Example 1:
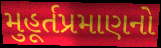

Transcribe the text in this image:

મુહૂર્તપ્રમાણનો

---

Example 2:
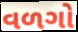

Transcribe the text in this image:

વળગો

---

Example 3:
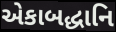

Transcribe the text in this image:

એકાબદ્ધાનિ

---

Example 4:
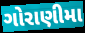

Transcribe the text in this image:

ગોરાણીમા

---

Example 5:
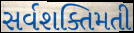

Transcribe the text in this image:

સર્વશક્તિમતી